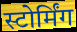
स्टोर्मिंग